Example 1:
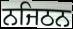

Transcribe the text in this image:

ਨਜਿਠਨ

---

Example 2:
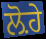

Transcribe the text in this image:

ਲ਼ੋਹੇ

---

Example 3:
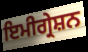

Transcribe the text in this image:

ਇਮੀਗ੍ਰੇਸ਼ਨ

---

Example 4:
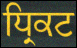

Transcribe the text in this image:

ਧ੍ਰਿਕਟ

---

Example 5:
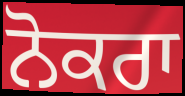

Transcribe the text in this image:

ਨੋਕਰਾ